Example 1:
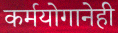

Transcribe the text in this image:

कर्मयोगानेही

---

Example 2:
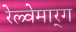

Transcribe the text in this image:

रेल्वेमार्ग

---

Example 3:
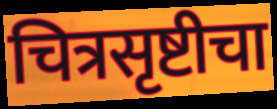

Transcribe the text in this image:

चित्रसृष्टीचा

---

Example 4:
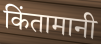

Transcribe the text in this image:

किंतामानी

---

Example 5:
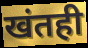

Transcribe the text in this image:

खंतही